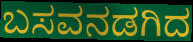
ಬಸವನಡಗಿದ